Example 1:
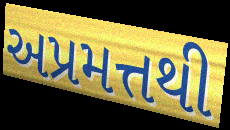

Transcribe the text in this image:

અપ્રમત્તથી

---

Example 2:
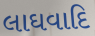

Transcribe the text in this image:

લાઘવાદિ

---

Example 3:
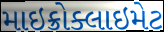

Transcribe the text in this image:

માઇક્રોક્લાઇમેટ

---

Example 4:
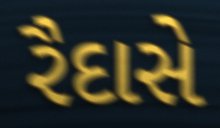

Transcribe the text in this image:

રૈદાસે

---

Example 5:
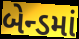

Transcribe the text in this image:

બેન્ડમાં